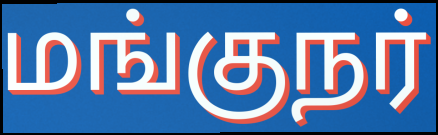
மங்குநர்